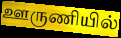
ஊருணியில்